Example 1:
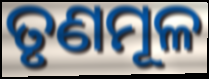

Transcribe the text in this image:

ତୃଣମୂଳ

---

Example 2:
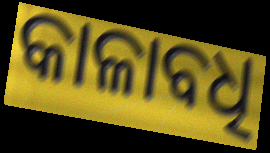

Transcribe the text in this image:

କାଳାବଧି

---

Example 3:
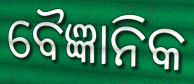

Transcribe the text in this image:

ବୈଜ୍ଞାନିକ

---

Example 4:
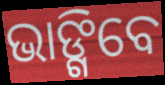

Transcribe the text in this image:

ଭାଙ୍ଗିବେ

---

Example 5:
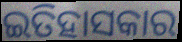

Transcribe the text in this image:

ଇତିହାସକାର